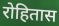
रोहितास